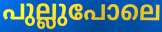
പുല്ലുപോലെ